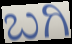
ಬಗಿ